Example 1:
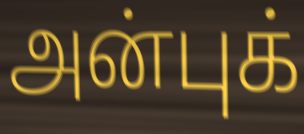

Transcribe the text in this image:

அன்புக்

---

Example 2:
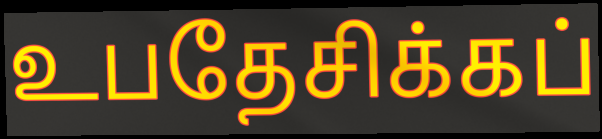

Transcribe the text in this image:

உபதேசிக்கப்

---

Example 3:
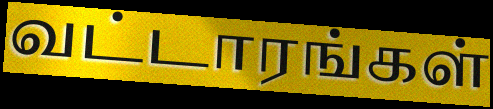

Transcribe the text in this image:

வட்டாரங்கள்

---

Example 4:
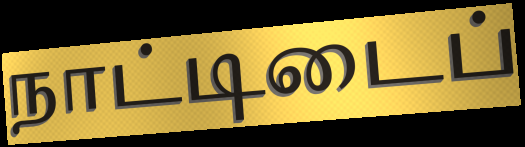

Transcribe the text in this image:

நாட்டிடைப்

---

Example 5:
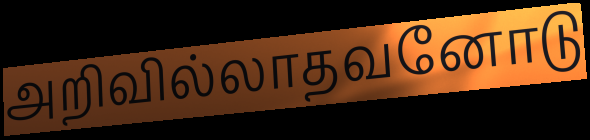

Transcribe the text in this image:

அறிவில்லாதவனோடு